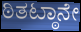
ಠಿತಟ್ಠಾನೇ